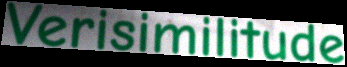
Verisimilitude